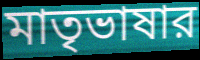
মাতৃভাষার